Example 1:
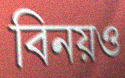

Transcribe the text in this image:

বিনয়ও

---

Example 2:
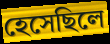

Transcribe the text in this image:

হেসেছিলে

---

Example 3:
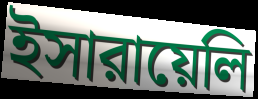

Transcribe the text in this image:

ইসারায়েলি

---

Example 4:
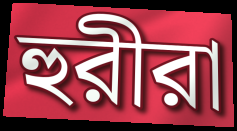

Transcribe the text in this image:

হুরীরা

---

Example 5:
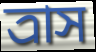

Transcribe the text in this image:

ত্রাস